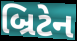
બ્રિટેન